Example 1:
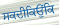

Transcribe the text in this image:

ਸਕਦੀਕਿਉਂਕਿ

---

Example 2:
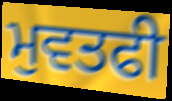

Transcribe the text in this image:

ਮੁਵਤਫੀ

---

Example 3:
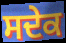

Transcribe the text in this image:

ਸਦੇਕ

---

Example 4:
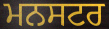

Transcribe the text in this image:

ਮਨਸਟਰ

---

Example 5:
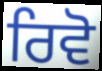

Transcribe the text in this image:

ਰਿਵੋ